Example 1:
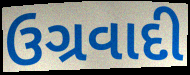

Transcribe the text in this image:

ઉગ્રવાદી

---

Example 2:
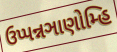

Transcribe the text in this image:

ઉપ્પન્નઞાણોમ્હિ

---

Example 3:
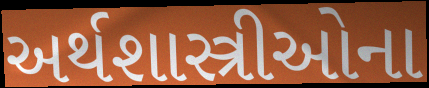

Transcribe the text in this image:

અર્થશાસ્ત્રીઓના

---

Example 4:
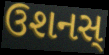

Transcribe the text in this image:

ઉશનસ્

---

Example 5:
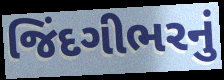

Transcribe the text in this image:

જિંદગીભરનું